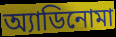
অ্যাডিনোমা